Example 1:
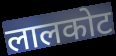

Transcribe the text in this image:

लालकोट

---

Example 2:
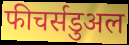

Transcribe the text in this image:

फीचर्सडुअल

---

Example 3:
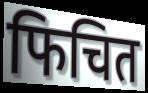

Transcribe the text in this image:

फिचित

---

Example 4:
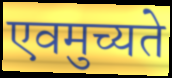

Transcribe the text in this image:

एवमुच्यते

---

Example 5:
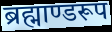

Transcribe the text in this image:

ब्रह्माण्डरूप